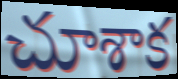
చూశాక